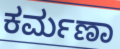
ಕರ್ಮಣಾ